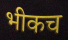
भीकच